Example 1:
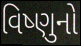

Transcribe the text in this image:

વિષ્ણુનો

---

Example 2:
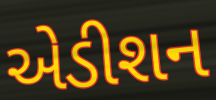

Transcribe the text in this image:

એડીશન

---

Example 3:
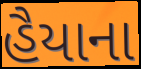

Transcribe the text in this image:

હૈયાના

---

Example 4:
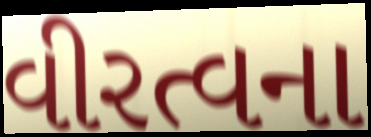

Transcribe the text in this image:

વીરત્વના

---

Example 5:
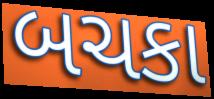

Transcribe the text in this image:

બચકા